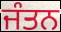
ਜੰਤਨ